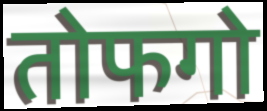
तोफगो